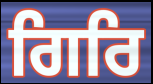
ਗਿਰਿ